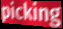
picking